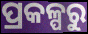
ପ୍ରକଳ୍ପରୁ